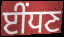
ਈਂਧਣ